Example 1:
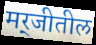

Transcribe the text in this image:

मर्जीतील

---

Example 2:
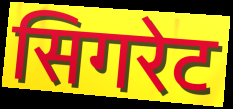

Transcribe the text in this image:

सिगरेट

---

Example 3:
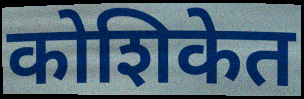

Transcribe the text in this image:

कोशिकेत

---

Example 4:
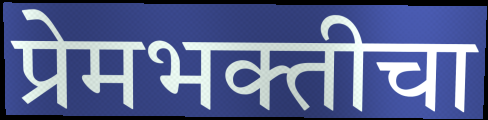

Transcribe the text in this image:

प्रेमभक्तीचा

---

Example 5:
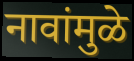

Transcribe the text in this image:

नावांमुळे